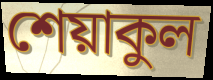
শেয়াকুল